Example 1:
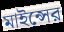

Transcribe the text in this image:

মাইন্সের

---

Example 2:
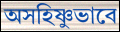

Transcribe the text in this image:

অসহিষ্ণুভাবে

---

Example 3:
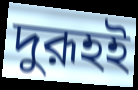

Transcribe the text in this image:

দুরূহই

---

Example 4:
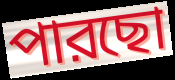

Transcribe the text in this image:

পারছো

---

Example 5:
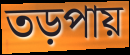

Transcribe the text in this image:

তড়পায়